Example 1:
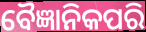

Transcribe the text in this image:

ବୈଜ୍ଞାନିକପରି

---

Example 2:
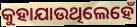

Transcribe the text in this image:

କୁହାଯାଉଥିଲେହେଁ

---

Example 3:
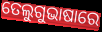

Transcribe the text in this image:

ତେଲୁଗୁଭାଷାରେ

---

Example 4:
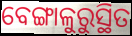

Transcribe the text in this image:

ବେଙ୍ଗାଳୁରୁସ୍ଥିତ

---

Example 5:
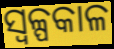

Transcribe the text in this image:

ସ୍ୱଳ୍ପକାଳ